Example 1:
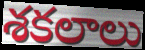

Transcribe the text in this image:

శకలాలు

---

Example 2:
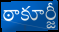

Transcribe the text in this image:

ఠాకూర్జీ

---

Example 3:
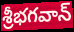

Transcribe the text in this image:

శ్రీభగవాన్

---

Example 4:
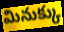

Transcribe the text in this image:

మినుక్కు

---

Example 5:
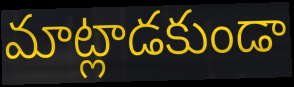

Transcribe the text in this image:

మాట్లాడకుండా